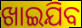
ଖାଇଯିବ